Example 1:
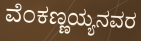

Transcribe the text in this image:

ವೆಂಕಣ್ಣಯ್ಯನವರ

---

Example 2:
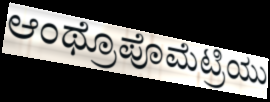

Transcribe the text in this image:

ಆಂಥ್ರೊಪೊಮೆಟ್ರಿಯು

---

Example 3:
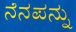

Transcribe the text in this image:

ನೆನಪನ್ನು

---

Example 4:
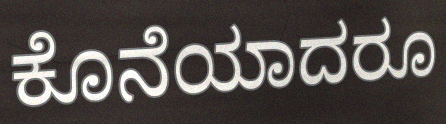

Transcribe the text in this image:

ಕೊನೆಯಾದರೂ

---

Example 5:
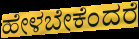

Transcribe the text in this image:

ಹೇಳಬೇಕೆಂದರೆ